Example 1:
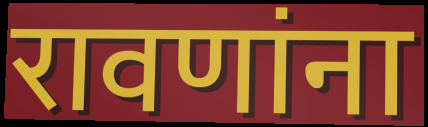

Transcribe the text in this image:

रावणांना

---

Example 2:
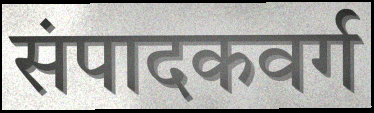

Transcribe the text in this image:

संपादकवर्ग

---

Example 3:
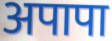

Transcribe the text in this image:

अपापा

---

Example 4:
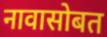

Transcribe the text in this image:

नावासोबत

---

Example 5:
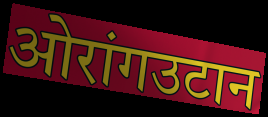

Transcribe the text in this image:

ओरांगउटान